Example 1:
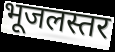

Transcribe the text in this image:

भूजलस्तर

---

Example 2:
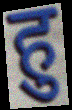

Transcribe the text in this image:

हु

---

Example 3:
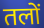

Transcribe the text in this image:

तलों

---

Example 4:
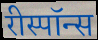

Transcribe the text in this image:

रीस्पॉन्स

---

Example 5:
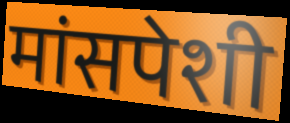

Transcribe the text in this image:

मांसपेशी